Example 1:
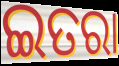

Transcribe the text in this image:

ଇତରା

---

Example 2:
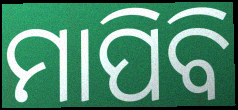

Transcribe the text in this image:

ମାପିବି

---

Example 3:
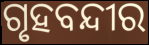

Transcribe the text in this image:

ଗୃହବନ୍ଦୀର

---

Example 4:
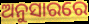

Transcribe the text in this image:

ଅନୁସାରରେ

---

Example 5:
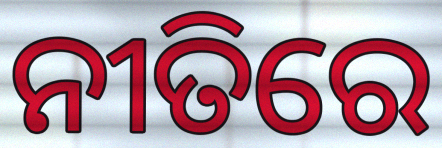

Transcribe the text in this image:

ନୀତିରେ